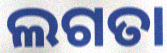
ଲଗତା